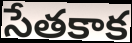
సేతకాక